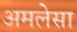
अमलेसा